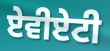
ਏਵੀਏਟੀ